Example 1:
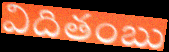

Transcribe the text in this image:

విదితంబు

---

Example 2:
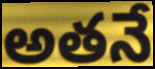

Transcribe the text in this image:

అతనే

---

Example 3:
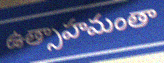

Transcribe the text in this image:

ఉత్సాహమంతా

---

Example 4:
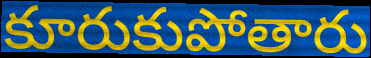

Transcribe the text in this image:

కూరుకుపోతారు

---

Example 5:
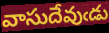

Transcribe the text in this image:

వాసుదేవుఁడు